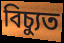
বিচ্যুত